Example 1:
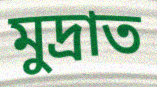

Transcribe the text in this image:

মুদ্ৰাত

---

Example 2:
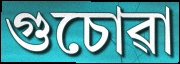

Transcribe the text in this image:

গুচোৱা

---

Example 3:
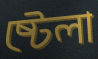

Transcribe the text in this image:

ষ্টেলা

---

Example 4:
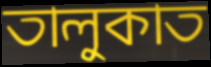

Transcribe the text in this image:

তালুকাত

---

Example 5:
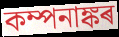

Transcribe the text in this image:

কম্পনাঙ্কৰ